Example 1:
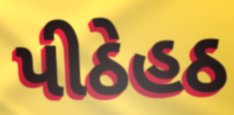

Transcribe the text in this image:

પીઠેહઠ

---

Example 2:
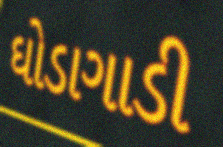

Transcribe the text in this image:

ઘોડાગાડી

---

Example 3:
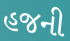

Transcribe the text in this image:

હજની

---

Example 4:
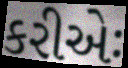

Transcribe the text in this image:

કરીએઃ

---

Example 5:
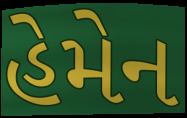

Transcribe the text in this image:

હેમેન